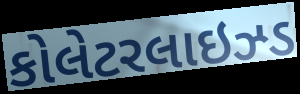
કોલેટરલાઇઝ્ડ